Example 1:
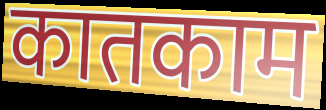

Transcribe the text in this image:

कातकाम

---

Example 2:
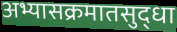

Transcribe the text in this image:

अभ्यासक्रमातसुद्धा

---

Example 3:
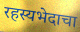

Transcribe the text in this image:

रहस्यभेदाचा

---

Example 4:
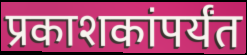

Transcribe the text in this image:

प्रकाशकांपर्यंत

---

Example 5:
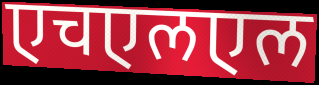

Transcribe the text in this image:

एचएलएल